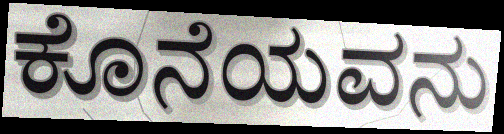
ಕೊನೆಯವನು